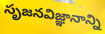
సృజనవిజ్ఞానాన్ని